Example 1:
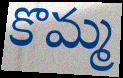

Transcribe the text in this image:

కొమ్మ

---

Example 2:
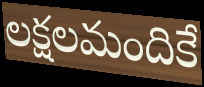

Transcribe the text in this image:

లక్షలమందికే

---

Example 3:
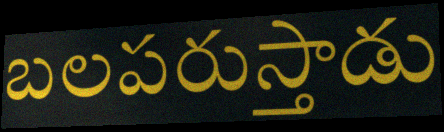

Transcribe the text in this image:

బలపరుస్తాడు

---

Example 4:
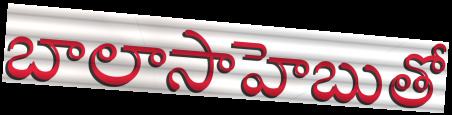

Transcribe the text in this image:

బాలాసాహెబుతో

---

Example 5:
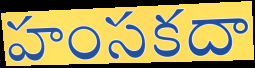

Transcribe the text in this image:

హంసకదా